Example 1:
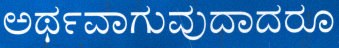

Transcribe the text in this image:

ಅರ್ಥವಾಗುವುದಾದರೂ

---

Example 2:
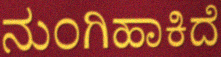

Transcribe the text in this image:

ನುಂಗಿಹಾಕಿದೆ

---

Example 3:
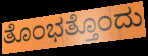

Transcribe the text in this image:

ತೊಂಭತ್ತೊಂದು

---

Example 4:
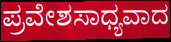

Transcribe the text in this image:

ಪ್ರವೇಶಸಾಧ್ಯವಾದ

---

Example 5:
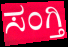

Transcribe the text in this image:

ಸಂಗ್ತಿ